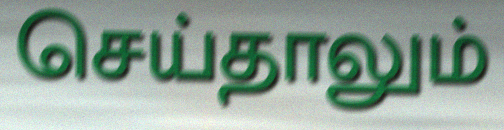
செய்தாலும்